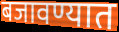
बजावण्यात